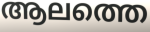
ആലത്തെ